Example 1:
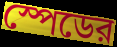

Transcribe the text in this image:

স্পেডের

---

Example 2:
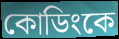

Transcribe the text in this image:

কোডিংকে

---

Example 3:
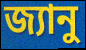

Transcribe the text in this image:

জ্যানু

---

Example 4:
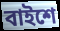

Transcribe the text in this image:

বাইশে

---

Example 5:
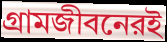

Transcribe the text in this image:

গ্রামজীবনেরই